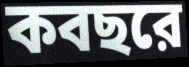
কবছরে